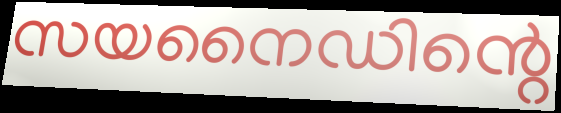
സയനൈഡിന്റെ